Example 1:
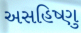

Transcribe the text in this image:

અસહિષ્ણુ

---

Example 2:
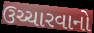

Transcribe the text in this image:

ઉચ્ચારવાનો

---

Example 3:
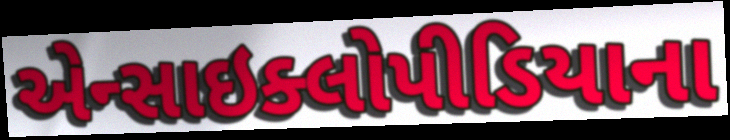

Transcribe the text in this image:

એન્સાઇક્લોપીડિયાના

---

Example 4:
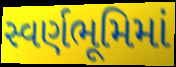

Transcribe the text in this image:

સ્વર્ણભૂમિમાં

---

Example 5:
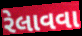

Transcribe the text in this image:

રેલાવવા